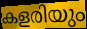
കളരിയും